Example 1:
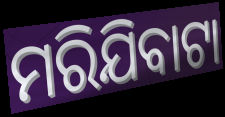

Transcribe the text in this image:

ମରିଯିବାଟା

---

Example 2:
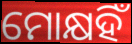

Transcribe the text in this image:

ମୋକ୍ଷହିଁ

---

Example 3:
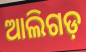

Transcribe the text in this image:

ଆଲିଗଡ଼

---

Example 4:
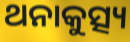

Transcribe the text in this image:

ଥନାକୁତ୍ସ୍ୟ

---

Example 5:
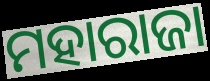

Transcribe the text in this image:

ମହାରାଜା